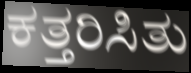
ಕತ್ತರಿಸಿತು